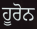
ਹੂਰੋਨ